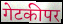
गेटकीपर